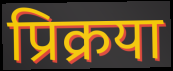
प्रिक्रया